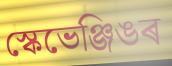
স্কেভেঞ্জিঙৰ